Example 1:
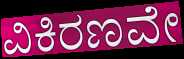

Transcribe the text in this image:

ವಿಕಿರಣವೇ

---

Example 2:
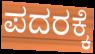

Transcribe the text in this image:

ಪದರಕ್ಕೆ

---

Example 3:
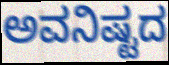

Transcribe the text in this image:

ಅವನಿಷ್ಟದ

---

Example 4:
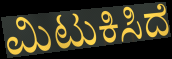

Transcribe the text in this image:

ಮಿಟುಕಿಸಿದೆ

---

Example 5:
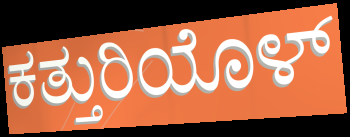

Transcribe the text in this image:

ಕತ್ತುರಿಯೊಳ್